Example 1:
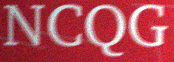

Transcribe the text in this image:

NCQG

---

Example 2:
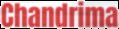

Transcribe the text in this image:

Chandrima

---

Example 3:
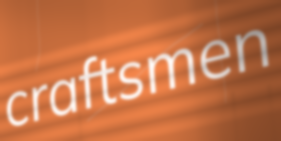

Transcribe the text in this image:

craftsmen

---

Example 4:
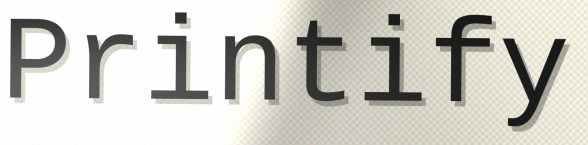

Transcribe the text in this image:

Printify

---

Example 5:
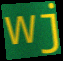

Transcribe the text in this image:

wj